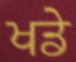
ਖਡੇ